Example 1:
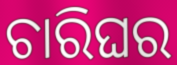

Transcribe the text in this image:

ଚାରିଘର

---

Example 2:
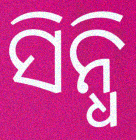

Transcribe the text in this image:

ସିନ୍ଧି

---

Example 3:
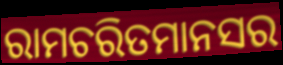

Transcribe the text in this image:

ରାମଚରିତମାନସର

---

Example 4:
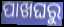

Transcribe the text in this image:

ପାଖଘରୁ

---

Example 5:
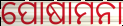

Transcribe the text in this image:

ପୋଷାମନା